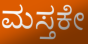
ಮಸ್ತಕೇ